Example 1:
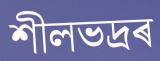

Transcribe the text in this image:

শীলভদ্ৰৰ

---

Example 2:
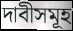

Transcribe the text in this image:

দাবীসমূহ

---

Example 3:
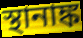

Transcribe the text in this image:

স্থানাঙ্ক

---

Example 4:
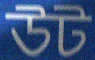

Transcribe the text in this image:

উট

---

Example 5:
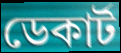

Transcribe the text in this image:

ডেকাৰ্ট